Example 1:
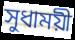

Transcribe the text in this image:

সুধাময়ী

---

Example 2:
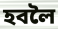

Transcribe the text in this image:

হবলৈ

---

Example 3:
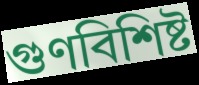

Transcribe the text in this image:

গুণবিশিষ্ট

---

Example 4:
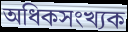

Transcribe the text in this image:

অধিকসংখ্যক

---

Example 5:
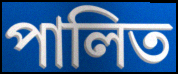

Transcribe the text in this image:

পালিত